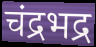
चंद्रभद्र